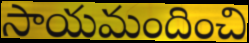
సాయమందించి